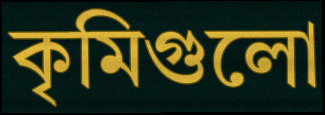
কৃমিগুলো